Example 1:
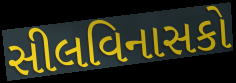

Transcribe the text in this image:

સીલવિનાસકો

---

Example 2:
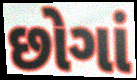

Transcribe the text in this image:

છોગાં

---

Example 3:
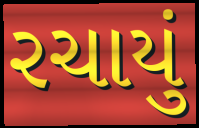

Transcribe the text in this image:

રચાયું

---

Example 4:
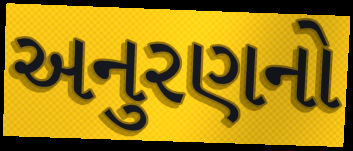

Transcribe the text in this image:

અનુરણનો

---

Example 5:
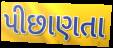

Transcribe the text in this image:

પીછાણતા